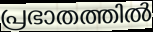
പ്രഭാതത്തിൽ